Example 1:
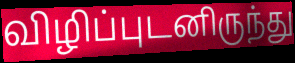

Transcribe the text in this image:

விழிப்புடனிருந்து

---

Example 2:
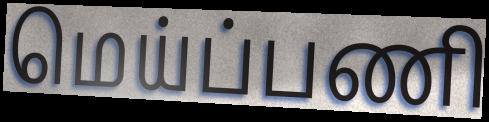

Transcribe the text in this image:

மெய்ப்பணி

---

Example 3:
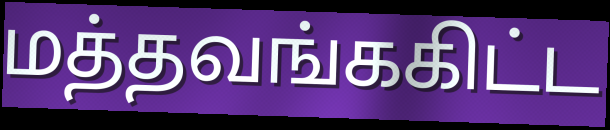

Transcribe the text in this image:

மத்தவங்ககிட்ட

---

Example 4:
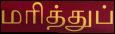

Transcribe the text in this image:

மரித்துப்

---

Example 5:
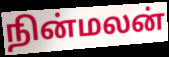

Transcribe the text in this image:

நின்மலன்